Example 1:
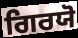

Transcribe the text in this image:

ਗਿਰਯੋ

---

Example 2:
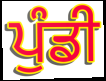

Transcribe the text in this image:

ਪੁੰਡੀ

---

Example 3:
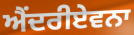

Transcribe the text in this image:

ਐਂਦਰੀਏਵਨਾ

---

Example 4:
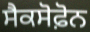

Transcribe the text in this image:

ਸੈਕਸੋਫ਼ੋਨ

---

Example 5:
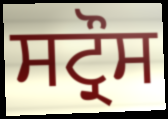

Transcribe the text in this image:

ਸਟ੍ਰੌਸ